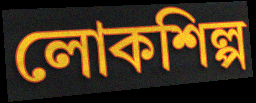
লোকশিল্প